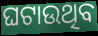
ଘଟାଉଥିବ